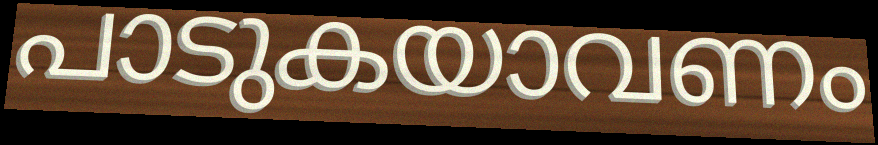
പാടുകയാവണം